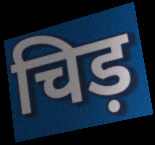
चिड़